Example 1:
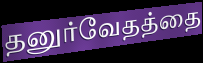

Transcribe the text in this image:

தனுர்வேதத்தை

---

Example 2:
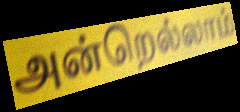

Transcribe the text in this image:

அன்றெல்லாம்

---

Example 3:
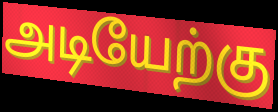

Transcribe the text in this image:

அடியேற்கு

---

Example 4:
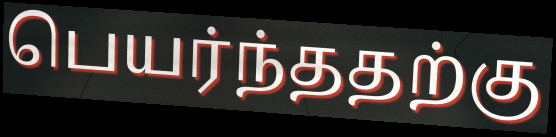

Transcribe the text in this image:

பெயர்ந்ததற்கு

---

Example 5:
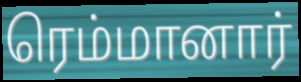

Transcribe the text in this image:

ரெம்மானார்